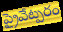
ప్రైవేట్పరం